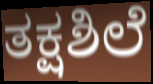
ತಕ್ಷಶಿಲೆ